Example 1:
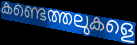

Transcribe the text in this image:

കണ്ടെത്തലുകളെ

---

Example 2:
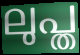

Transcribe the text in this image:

ലുപ്ത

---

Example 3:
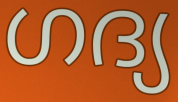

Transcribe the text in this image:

ഗദ്യ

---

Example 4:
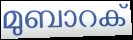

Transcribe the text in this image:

മുബാറക്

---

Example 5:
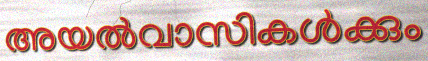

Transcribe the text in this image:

അയൽവാസികൾക്കും